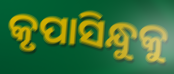
କୃପାସିନ୍ଧୁକୁ